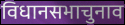
विधानसभाचुनाव